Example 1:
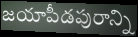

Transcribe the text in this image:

జయాపీడపురాన్ని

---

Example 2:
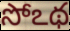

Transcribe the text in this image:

సోఽథ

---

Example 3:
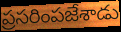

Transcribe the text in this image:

ప్రసరింపజేశాడు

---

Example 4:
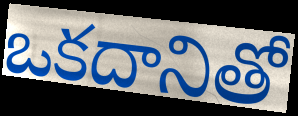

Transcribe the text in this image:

ఒకదానితో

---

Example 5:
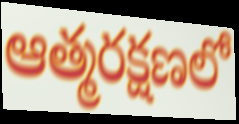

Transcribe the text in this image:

ఆత్మరక్షణలో